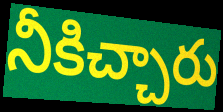
నీకిచ్చారు